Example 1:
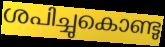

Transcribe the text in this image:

ശപിച്ചുകൊണ്ടു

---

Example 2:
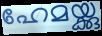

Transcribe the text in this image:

ഹേമയ്ക്കു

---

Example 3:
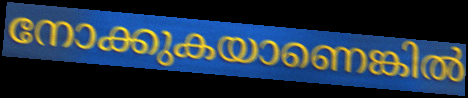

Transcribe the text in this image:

നോക്കുകയാണെങ്കിൽ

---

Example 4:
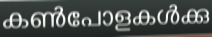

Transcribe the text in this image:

കൺപോളകൾക്കു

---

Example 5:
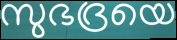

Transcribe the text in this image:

സുഭദ്രയെ